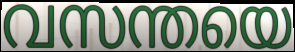
വസന്തയെ